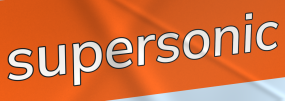
supersonic